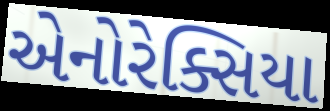
એનોરેક્સિયા